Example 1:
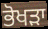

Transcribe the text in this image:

ਭੋਖੜਾ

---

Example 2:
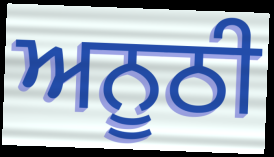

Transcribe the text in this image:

ਅਨੂਠੀ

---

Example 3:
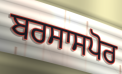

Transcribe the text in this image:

ਬਰਸਾਸਪੋਰ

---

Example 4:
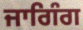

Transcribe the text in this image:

ਜਾਗਿੰਗ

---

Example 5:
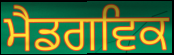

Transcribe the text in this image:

ਮੈਡਗਵਿਕ